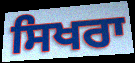
ਸਿਖਰਾ